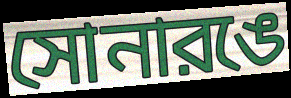
সোনারঙে